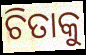
ଚିତାକୁ